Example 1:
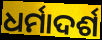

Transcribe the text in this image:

ଧର୍ମାଦର୍ଶ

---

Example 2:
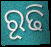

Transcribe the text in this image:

ରୂଢି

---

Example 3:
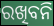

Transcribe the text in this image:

ରଖିବନି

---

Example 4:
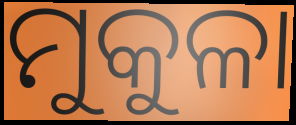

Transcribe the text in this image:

ମୁକୁଳା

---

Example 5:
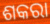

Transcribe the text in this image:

ଶକରା